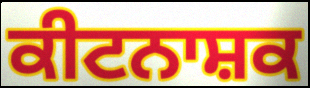
ਕੀਟਨਾਸ਼ਕ